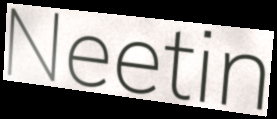
Neetin